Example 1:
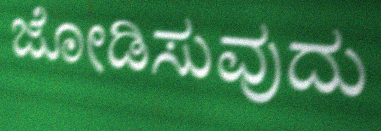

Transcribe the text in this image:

ಜೋಡಿಸುವುದು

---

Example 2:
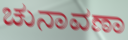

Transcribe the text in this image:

ಚುನಾವಣಾ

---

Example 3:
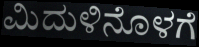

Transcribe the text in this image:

ಮಿದುಳಿನೊಳಗೆ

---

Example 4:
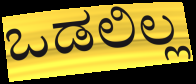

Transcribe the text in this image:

ಒಡಲಿಲ್ಲ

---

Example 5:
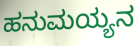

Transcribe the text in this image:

ಹನುಮಯ್ಯನ